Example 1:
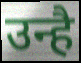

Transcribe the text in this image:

उन्है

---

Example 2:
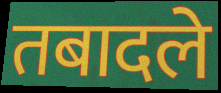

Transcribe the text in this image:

तबादले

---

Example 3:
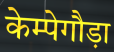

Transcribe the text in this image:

केम्पेगौड़ा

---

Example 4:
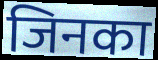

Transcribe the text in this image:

जिनका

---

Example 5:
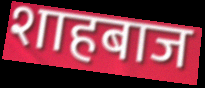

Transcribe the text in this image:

शाहबाज